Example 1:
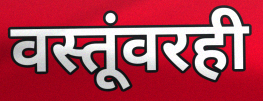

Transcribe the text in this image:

वस्तूंवरही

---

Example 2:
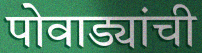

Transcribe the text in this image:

पोवाड्यांची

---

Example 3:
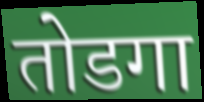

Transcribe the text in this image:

तोडगा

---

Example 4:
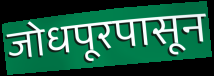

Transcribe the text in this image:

जोधपूरपासून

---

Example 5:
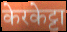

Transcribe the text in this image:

केरकेट्टा